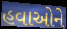
હવાઓને